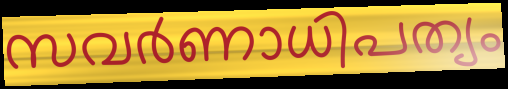
സവർണാധിപത്യം